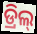
ଡ୍ରିଲ୍